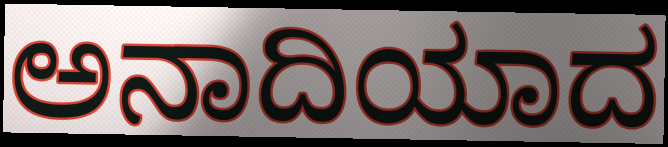
ಅನಾದಿಯಾದ